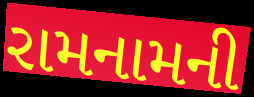
રામનામની